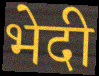
भेदी